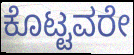
ಕೊಟ್ಟವರೇ